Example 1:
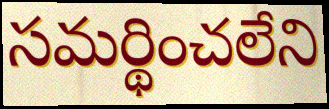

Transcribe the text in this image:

సమర్థించలేని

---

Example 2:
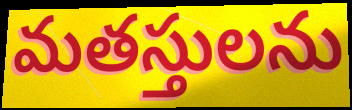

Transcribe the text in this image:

మతస్తులను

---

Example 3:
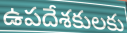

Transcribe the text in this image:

ఉపదేశకులకు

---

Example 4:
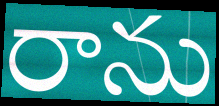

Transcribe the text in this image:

రాను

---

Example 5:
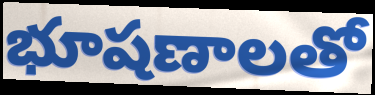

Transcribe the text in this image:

భూషణాలతో